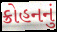
ક્રોહનનું